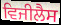
ਵਿਜੀਲੈਸ